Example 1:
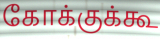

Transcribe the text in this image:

கோக்குக்கூ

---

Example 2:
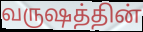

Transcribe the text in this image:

வருஷத்தின்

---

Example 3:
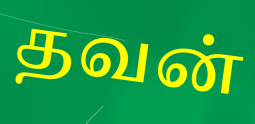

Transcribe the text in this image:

தவன்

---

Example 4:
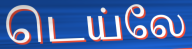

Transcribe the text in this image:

டெய்லே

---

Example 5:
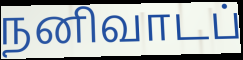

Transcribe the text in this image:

நனிவாடப்